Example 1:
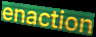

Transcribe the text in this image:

enaction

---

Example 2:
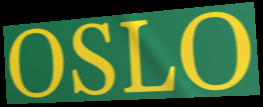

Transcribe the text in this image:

OSLO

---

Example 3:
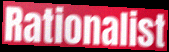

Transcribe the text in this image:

Rationalist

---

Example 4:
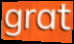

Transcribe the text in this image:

grat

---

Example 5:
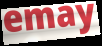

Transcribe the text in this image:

emay